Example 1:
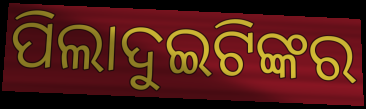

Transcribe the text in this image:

ପିଲାଦୁଇଟିଙ୍କର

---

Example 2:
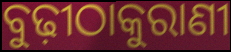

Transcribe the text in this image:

ବୁଢ଼ୀଠାକୁରାଣୀ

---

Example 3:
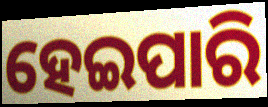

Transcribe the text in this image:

ହେଇପାରି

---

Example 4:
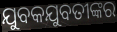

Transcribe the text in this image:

ଯୁବକଯୁବତୀଙ୍କର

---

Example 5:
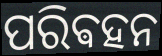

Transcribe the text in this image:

ପରିଵହନ